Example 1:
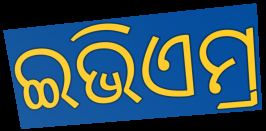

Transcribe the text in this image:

ଇଭିଏମ୍ର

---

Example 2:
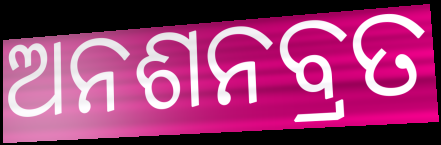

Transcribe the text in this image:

ଅନଶନବ୍ରତ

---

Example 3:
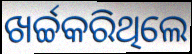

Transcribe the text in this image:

ଖର୍ଚ୍ଚକରିଥିଲେ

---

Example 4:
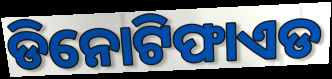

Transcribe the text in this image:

ଡିନୋଟିଫାଏଡ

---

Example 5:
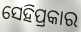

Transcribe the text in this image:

ସେହିପ୍ରକାର